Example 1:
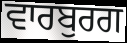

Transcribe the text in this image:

ਵਾਰਬੁਰਗ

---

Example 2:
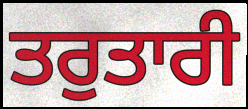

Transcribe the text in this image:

ਤਰੁਤਾਰੀ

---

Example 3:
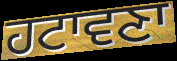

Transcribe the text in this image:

ਹਟਾਵਣਾ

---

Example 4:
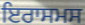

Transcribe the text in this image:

ਇਰਾਸਮਸ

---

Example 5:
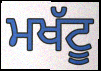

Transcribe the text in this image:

ਮਖੱਟੂ